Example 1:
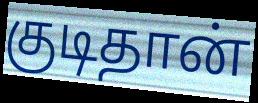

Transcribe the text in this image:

குடிதான்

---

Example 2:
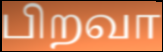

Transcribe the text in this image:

பிறவா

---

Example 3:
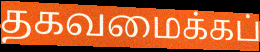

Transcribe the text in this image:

தகவமைக்கப்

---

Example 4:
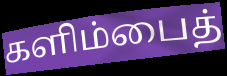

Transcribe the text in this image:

களிம்பைத்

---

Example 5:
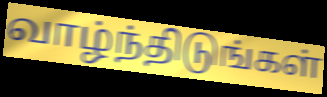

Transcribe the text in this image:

வாழ்ந்திடுங்கள்